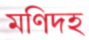
মণিদহ